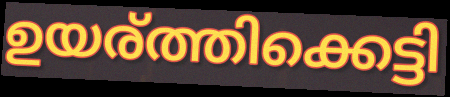
ഉയര്ത്തിക്കെട്ടി